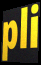
pli